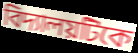
বিদ্যালয়টিকে